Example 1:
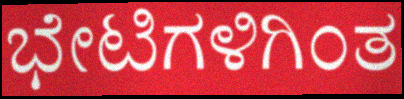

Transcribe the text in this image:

ಭೇಟಿಗಳಿಗಿಂತ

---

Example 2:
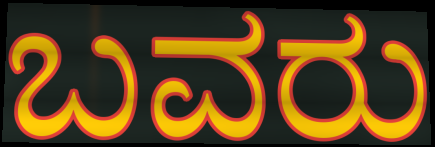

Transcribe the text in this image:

ಬವರು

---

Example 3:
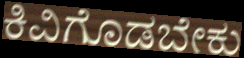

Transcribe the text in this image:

ಕಿವಿಗೊಡಬೇಕು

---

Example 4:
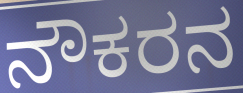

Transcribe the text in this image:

ನೌಕರನ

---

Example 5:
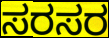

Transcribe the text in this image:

ಸರಸರ